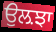
ਉਲ਼ਝਾ